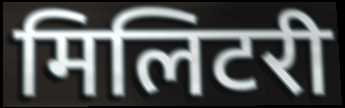
मिलिटरी